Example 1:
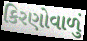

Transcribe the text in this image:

કિરણોવાળું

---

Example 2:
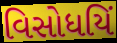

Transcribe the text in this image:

વિસોધયિં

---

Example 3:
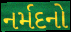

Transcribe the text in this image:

નર્મદનો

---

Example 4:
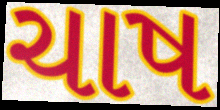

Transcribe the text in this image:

ચાષ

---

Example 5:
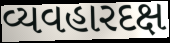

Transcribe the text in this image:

વ્યવહારદક્ષ